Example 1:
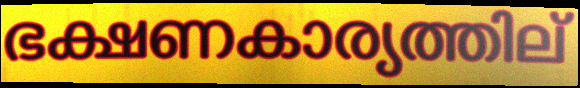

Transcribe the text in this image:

ഭക്ഷണകാര്യത്തില്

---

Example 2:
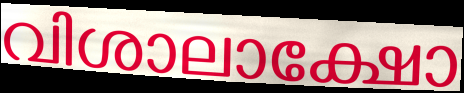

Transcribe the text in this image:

വിശാലാക്ഷോ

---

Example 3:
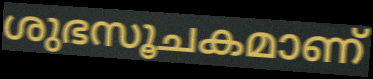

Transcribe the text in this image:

ശുഭസൂചകമാണ്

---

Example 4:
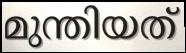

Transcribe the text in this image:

മുന്തിയത്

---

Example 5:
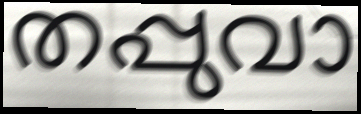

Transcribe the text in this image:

തപ്പുവാ